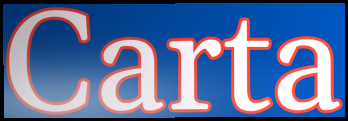
Carta